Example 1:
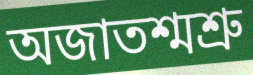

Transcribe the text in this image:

অজাতশ্মশ্রু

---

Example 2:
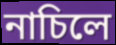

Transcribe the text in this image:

নাচিলে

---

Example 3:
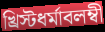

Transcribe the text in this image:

খ্রিস্টধর্মাবলম্বী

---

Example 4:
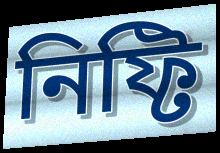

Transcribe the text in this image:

নিফ্টি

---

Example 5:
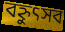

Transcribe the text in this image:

বহ্নুৎসব